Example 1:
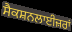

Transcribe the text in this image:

ਸੈਕਸ਼ਨਲਾਈਜ਼ਰਾਂ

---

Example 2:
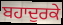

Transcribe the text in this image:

ਬਹਾਦੁਰਕੇ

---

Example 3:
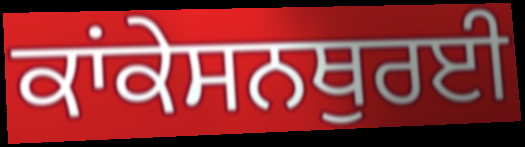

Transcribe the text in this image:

ਕਾਂਕੇਸਨਥੁਰਈ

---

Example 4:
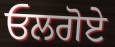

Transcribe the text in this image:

ਓਲਗੋਏ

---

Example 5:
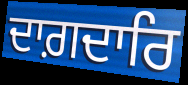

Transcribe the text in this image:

ਦਾਗ਼ਦਾਰਿ